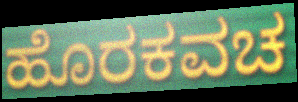
ಹೊರಕವಚ